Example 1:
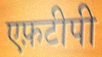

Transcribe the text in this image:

एफ़टीपी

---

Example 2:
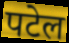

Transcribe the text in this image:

पटेल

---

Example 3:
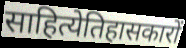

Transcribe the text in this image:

साहित्येतिहासकारों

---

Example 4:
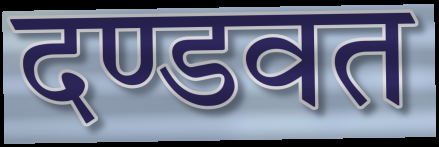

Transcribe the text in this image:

दण्‍डवत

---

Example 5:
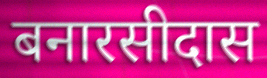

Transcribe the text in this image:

बनारसीदास